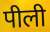
पीली